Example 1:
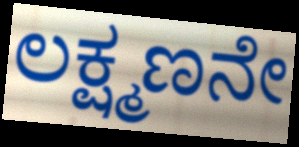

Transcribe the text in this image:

ಲಕ್ಷ್ಮಣನೇ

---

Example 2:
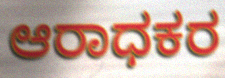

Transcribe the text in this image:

ಆರಾಧಕರ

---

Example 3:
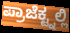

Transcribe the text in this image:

ಪ್ರಾಜೆಕ್ಟ್ನಲ್ಲಿ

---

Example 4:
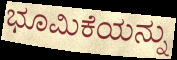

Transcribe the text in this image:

ಭೂಮಿಕೆಯನ್ನು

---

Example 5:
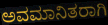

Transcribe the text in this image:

ಅವಮಾನಿತರಾಗಿ